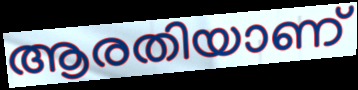
ആരതിയാണ്